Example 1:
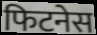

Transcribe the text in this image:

फिटनेस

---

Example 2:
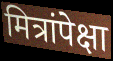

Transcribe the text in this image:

मित्रांपेक्षा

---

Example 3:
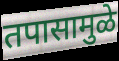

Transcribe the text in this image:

तपासामुळे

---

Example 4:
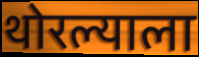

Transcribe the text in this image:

थोरल्याला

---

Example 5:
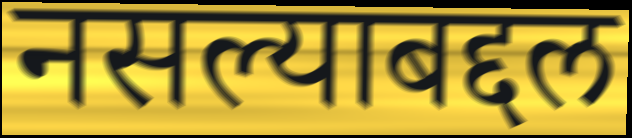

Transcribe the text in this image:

नसल्याबद्दल